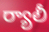
ర్యాలీ